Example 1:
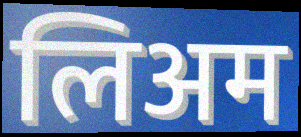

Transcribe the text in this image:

लिअम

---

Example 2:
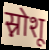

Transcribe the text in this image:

स्नोशू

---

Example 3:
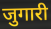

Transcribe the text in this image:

जुगारी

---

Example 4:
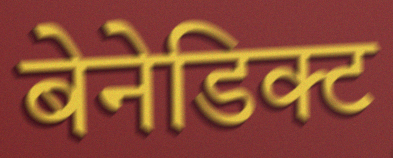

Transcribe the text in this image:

बेनेडिक्ट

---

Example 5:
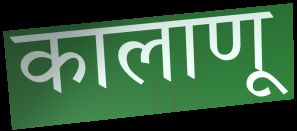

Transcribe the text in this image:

कालाणू